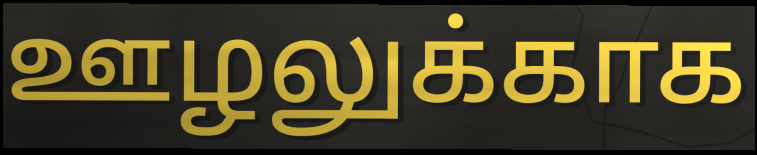
ஊழலுக்காக